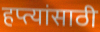
हप्त्यांसाठी